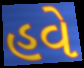
હવે